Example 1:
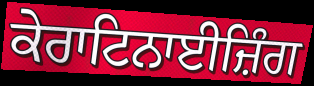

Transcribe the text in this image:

ਕੇਰਾਟਿਨਾਈਜ਼ਿੰਗ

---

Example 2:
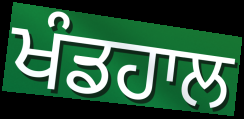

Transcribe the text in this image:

ਖੰਡਹਾਲ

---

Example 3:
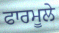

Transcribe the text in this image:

ਫਾਰਮੂਲੇ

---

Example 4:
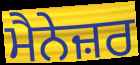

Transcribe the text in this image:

ਮੈਨੇਜ਼ਰ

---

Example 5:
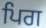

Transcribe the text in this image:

ਪਿਗ